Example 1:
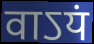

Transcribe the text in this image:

वाऽयं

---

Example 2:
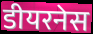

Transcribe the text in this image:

डीयरनेस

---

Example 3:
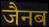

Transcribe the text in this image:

जैनब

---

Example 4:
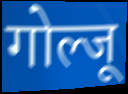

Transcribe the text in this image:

गोल्जू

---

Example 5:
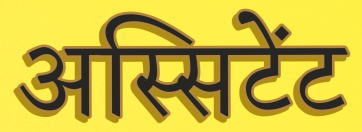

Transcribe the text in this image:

अस्सिटेंट